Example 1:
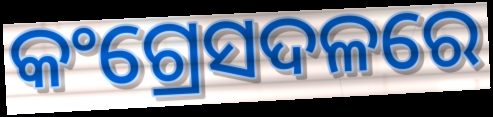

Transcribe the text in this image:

କଂଗ୍ରେସଦଳରେ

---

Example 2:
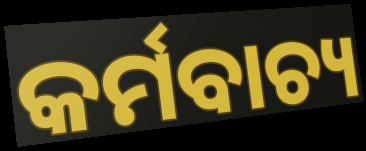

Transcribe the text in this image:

କର୍ମବାଚ୍ୟ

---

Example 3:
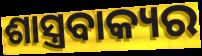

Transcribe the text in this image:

ଶାସ୍ତ୍ରବାକ୍ୟର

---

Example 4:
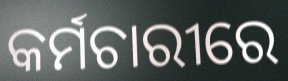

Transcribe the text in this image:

କର୍ମଚାରୀରେ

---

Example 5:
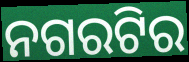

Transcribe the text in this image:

ନଗରଟିର